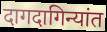
दागदागिन्यांत